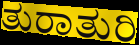
ತುರಾತುರಿ